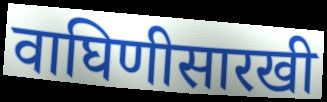
वाघिणीसारखी